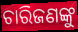
ଚାରିଜଣଙ୍କୁ